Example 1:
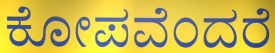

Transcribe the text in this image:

ಕೋಪವೆಂದರೆ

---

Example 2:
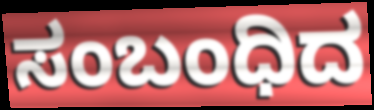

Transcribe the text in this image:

ಸಂಬಂಧಿದ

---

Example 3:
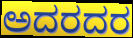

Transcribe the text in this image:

ಅದರದರ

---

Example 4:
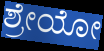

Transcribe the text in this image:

ಶ್ರೇಯೋ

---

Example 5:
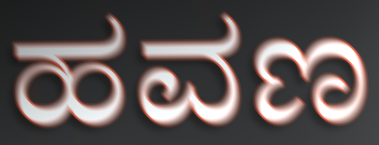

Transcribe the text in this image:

ಹವಣ